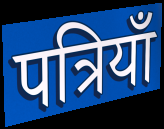
पत्रियाँ